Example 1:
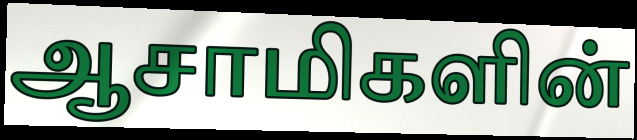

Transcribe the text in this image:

ஆசாமிகளின்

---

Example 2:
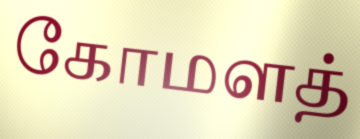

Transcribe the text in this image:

கோமளத்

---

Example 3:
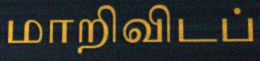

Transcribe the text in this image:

மாறிவிடப்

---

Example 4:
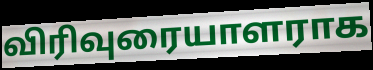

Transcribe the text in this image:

விரிவுரையாளராக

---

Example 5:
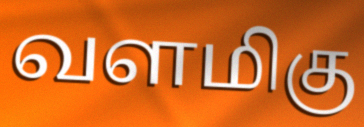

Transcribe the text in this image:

வளமிகு